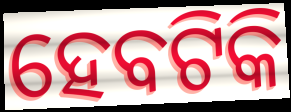
ହେବଟିକି